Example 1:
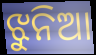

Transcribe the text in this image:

ଝୁନିଆ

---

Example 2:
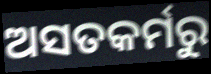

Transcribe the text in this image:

ଅସତକର୍ମରୁ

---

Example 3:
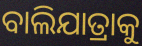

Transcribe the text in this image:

ବାଲିଯାତ୍ରାକୁ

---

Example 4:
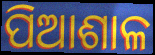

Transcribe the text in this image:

ପିଆଶାଳ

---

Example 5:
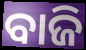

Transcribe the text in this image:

ବାଜି